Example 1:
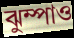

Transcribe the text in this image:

ঝুম্পাও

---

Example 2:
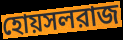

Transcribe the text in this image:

হোয়সলরাজ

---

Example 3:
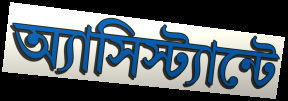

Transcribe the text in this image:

অ্যাসিস্ট্যান্টে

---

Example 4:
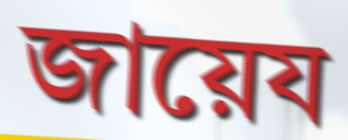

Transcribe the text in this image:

জায়েয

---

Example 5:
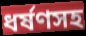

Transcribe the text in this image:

ধর্ষণসহ